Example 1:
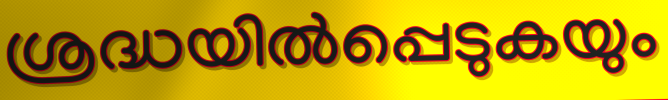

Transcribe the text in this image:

ശ്രദ്ധയിൽപ്പെടുകയും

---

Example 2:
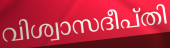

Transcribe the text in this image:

വിശ്വാസദീപ്തി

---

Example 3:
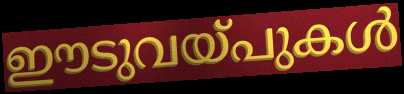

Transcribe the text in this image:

ഈടുവയ്പുകൾ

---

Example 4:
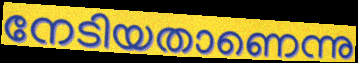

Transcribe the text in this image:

നേടിയതാണെന്നു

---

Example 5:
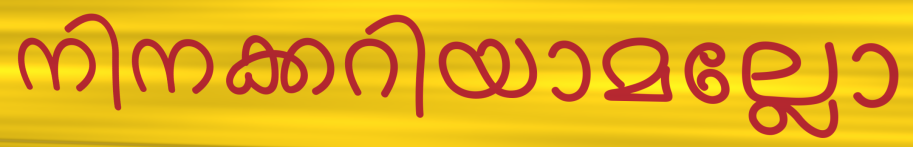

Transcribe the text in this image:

നിനക്കറിയാമല്ലോ